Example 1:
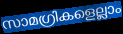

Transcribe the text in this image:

സാമഗ്രികളെല്ലാം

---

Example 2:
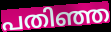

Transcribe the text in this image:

പതിഞ്ഞ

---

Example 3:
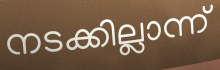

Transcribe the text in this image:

നടക്കില്ലാന്ന്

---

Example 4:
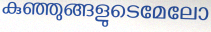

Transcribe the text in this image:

കുഞ്ഞുങ്ങളുടെമേലോ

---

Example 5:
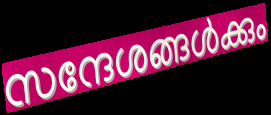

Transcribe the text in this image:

സന്ദേശങ്ങൾക്കും